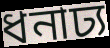
ধনাঢ্য